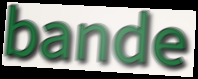
bande